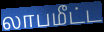
லாபமீட்ட